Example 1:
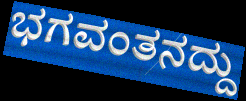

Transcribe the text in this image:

ಭಗವಂತನದ್ದು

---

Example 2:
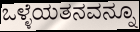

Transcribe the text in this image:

ಒಳ್ಳೆಯತನವನ್ನೂ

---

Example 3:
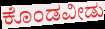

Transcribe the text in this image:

ಕೊಂಡವೀಡು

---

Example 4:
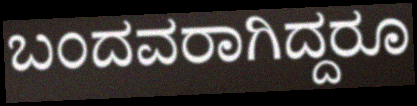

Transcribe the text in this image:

ಬಂದವರಾಗಿದ್ದರೂ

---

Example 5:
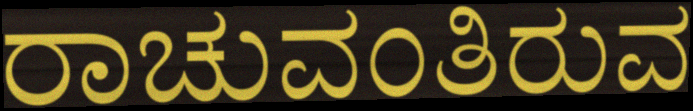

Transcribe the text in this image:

ರಾಚುವಂತಿರುವ